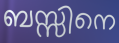
ബസ്സിനെ